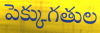
పెక్కుగతుల